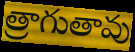
త్రాగుతావు